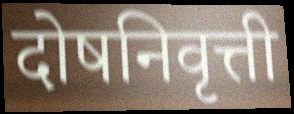
दोषनिवृत्ती